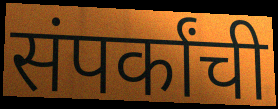
संपर्कांची